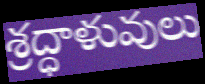
శ్రద్ధాళువులు